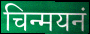
चिन्मयनं